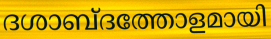
ദശാബ്ദത്തോളമായി